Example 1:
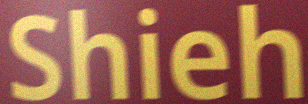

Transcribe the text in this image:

Shieh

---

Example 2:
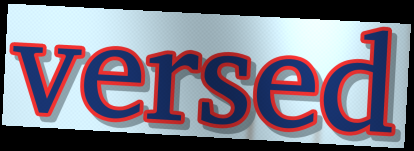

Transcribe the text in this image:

versed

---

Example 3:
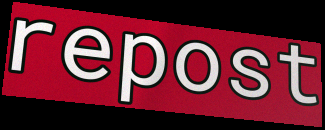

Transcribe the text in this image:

repost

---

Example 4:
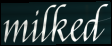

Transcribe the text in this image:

milked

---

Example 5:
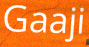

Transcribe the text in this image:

Gaaji